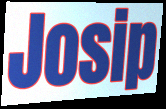
Josip